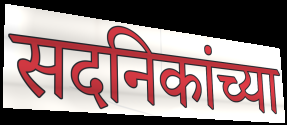
सदनिकांच्या